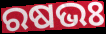
ରଷଭଃ